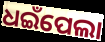
ଧଇଁପେଲା